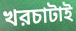
খরচাটাই